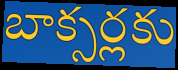
బాక్సర్లకు